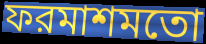
ফরমাশমতো